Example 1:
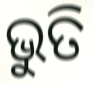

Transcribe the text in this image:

ଭୁତି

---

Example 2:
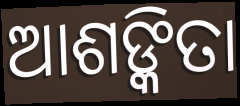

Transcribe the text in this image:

ଆଶଙ୍କିତା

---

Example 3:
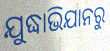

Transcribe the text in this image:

ଯୁଦ୍ଧାଭିଯାନରୁ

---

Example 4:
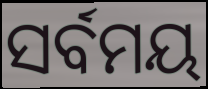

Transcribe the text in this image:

ସର୍ବମୟ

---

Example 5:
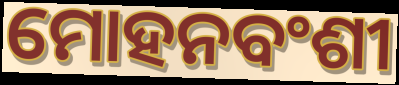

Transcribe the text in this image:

ମୋହନବଂଶୀ